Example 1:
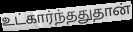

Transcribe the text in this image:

உட்கார்ந்ததுதான்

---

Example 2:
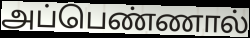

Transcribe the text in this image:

அப்பெண்ணால்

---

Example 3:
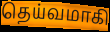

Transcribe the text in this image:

தெய்வமாகி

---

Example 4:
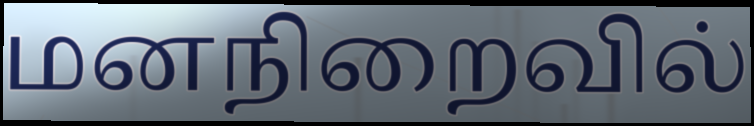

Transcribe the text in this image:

மனநிறைவில்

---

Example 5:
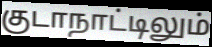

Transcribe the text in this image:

குடாநாட்டிலும்